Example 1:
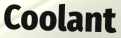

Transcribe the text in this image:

Coolant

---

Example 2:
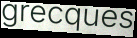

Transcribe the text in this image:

grecques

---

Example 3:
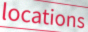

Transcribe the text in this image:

locations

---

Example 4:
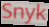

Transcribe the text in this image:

Snyk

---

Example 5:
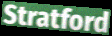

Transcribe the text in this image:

Stratford